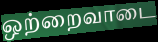
ஒற்றைவாடை